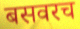
बसवरच